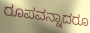
ರೂಪವನ್ನಾದರೂ